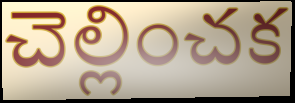
చెల్లించక